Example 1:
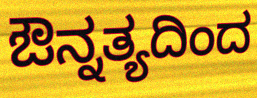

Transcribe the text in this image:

ಔನ್ನತ್ಯದಿಂದ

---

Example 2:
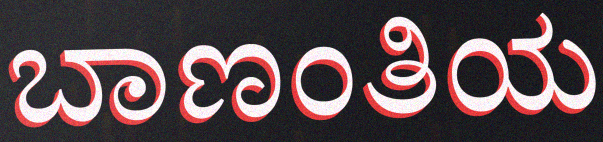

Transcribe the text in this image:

ಬಾಣಂತಿಯ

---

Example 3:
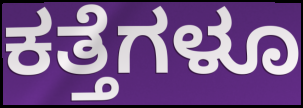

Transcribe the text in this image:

ಕತ್ತೆಗಳೂ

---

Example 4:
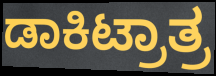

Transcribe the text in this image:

ಡಾಕಿಟ್ರಾತ್ರ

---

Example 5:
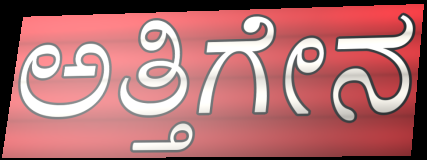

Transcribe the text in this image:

ಅತ್ತಿಗೇನ